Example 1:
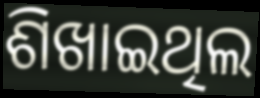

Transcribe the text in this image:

ଶିଖାଇଥିଲ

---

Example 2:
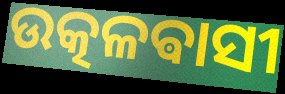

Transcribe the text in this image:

ଉତ୍କଳଵାସୀ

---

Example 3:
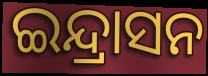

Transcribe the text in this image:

ଇନ୍ଦ୍ରାସନ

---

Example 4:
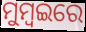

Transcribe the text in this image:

ମୁମ୍ବଇରେ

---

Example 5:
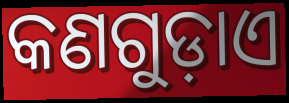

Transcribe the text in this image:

କଣଗୁଡ଼ାଏ